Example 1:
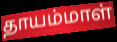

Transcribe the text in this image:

தாயம்மாள்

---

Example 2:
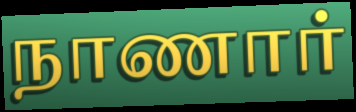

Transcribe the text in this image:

நாணார்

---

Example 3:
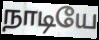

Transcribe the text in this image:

நாடியே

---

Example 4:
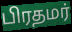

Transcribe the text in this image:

பிரதமர்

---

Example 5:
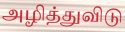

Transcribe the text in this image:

அழித்துவிடு